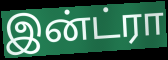
இன்ட்ரா